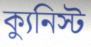
ক্যুনিস্ট